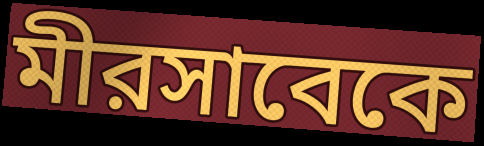
মীরসাবেকে